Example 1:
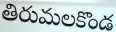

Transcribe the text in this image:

తిరుమలకొండ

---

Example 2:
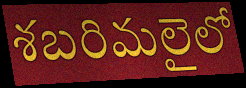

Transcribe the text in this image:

శబరిమలైలో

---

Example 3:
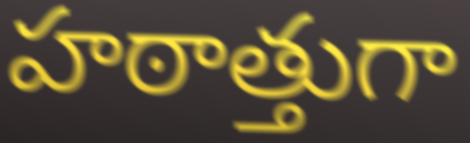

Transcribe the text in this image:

హఠాత్తుగా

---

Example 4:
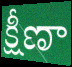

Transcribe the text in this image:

క్షీణా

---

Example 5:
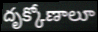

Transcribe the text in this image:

దృక్కోణాలూ